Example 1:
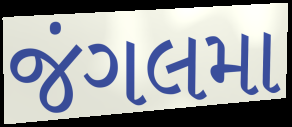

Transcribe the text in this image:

જંગલમા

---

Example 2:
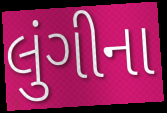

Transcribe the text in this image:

લુંગીના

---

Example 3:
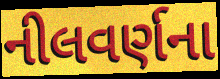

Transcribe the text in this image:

નીલવર્ણના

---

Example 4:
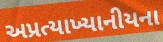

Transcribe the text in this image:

અપ્રત્યાખ્યાનીયના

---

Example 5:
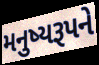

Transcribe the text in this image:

મનુષ્યરૂપને